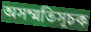
অসম্মতিসূচক